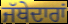
ਜੱਥੇਦਾਰਾਂ